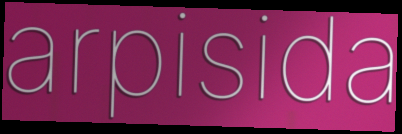
arpisida